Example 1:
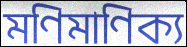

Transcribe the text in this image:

মণিমাণিক্য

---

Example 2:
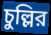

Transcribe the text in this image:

চুল্লির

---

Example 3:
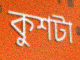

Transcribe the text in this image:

কুশটা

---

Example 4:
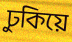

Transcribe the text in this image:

ঢুকিয়ে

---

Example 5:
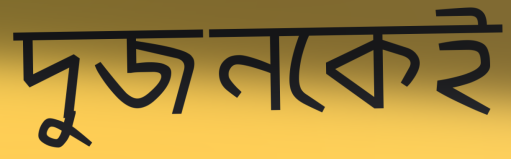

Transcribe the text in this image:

দুজনকেই